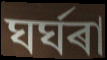
ঘৰ্ঘৰা